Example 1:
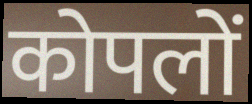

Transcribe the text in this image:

कोपलों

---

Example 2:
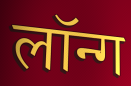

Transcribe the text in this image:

लॉन्ग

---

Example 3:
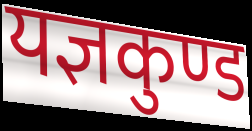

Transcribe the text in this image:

यज्ञकुण्ड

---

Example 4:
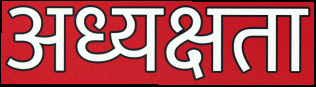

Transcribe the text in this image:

अध्यक्षता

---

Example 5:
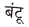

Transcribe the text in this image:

बंटू